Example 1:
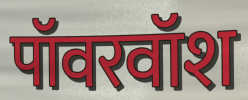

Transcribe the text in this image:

पॉवरवॉश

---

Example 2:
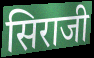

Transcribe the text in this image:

सिराजी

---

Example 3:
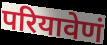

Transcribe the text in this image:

परियावेणं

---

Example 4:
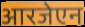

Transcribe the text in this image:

आरजेएन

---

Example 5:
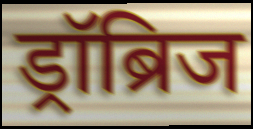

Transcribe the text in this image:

ड्रॉब्रिज